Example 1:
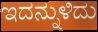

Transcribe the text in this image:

ಇದನ್ನುಳಿದು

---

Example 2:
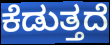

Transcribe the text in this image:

ಕೆಡುತ್ತದೆ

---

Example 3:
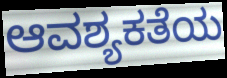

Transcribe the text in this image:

ಆವಶ್ಯಕತೆಯ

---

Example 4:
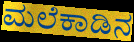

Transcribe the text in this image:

ಮಲೆಕಾಡಿನ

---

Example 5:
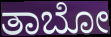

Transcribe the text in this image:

ತಾಬೋ